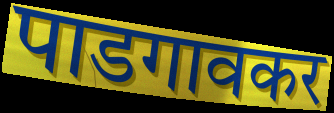
पाडगावकर